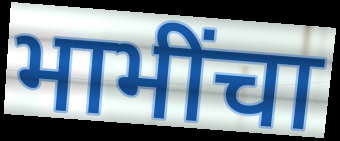
भाभींचा